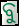
ବୁ